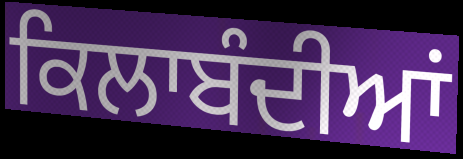
ਕਿਲਾਬੰਦੀਆਂ